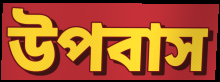
উপবাস